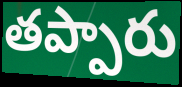
తప్పారు